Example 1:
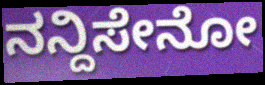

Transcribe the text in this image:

ನನ್ದಿಸೇನೋ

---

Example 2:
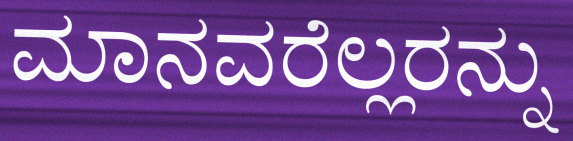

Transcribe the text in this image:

ಮಾನವರೆಲ್ಲರನ್ನು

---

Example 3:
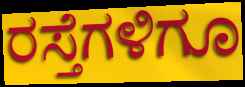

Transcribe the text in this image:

ರಸ್ತೆಗಳಿಗೂ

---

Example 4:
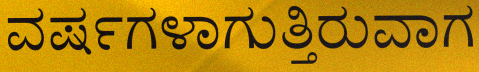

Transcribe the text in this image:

ವರ್ಷಗಳಾಗುತ್ತಿರುವಾಗ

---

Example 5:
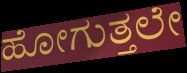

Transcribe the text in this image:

ಹೋಗುತ್ತಲೇ